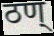
ठण्